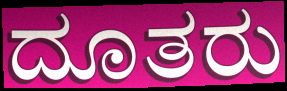
ದೂತರು